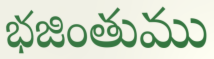
భజింతుము